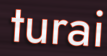
turai